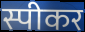
स्‍पीकर